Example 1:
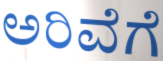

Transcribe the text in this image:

ಅರಿವೆಗೆ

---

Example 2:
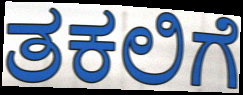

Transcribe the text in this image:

ತಕಲಿಗೆ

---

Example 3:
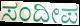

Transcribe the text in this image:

ಸಂದೀಪ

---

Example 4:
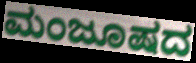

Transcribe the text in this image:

ಮಂಜೂಷದ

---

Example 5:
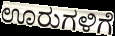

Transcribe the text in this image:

ಊರುಗಳಿಗೆ